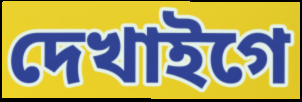
দেখাইগে